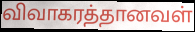
விவாகரத்தானவள்